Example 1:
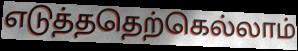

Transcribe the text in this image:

எடுத்ததெற்கெல்லாம்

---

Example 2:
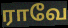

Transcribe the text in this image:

ராவே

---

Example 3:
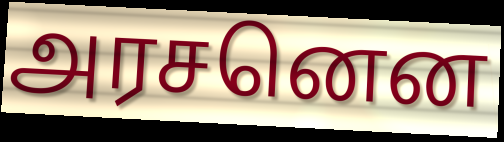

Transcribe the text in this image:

அரசனென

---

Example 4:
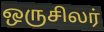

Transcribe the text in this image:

ஒருசிலர்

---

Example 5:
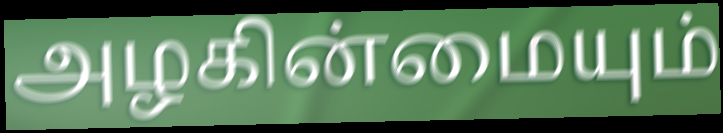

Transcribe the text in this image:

அழகின்மையும்